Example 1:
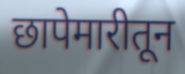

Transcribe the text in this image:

छापेमारीतून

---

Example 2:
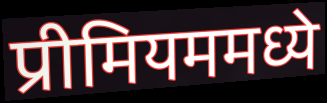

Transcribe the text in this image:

प्रीमियममध्ये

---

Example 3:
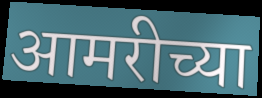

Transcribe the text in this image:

आमरीच्या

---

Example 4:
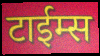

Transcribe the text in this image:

टाईम्स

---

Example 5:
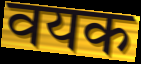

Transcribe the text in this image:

वयक